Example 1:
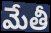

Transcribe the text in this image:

మేతీ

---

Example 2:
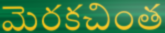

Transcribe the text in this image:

మెరకచింత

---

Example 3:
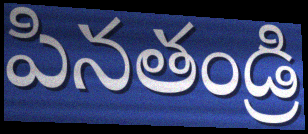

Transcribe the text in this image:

పినతండ్రి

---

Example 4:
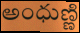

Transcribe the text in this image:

అంధుణ్ణి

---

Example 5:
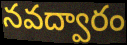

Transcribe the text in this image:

నవద్వారం